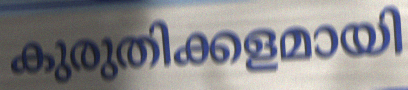
കുരുതിക്കളമായി